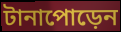
টানাপোড়েন